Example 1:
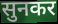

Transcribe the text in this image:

सुनकर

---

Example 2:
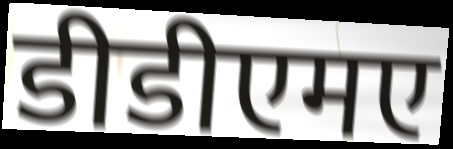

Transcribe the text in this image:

डीडीएमए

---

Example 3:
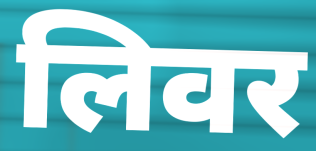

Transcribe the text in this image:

लिवर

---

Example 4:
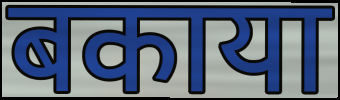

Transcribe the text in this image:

बकाया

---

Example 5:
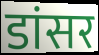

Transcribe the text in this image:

डांसर